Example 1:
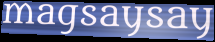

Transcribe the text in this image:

magsaysay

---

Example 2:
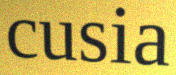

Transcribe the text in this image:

cusia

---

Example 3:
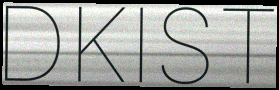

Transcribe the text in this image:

DKIST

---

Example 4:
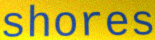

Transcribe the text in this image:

shores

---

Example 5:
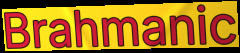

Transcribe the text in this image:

Brahmanic